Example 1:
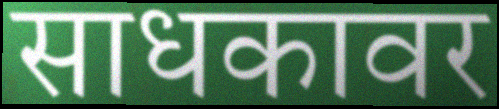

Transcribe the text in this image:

साधकावर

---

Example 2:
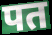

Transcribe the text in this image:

पत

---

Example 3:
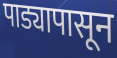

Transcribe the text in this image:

पाड्यापासून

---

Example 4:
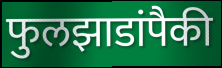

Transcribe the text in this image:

फुलझाडांपैकी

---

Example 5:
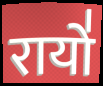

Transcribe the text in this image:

रायो॑